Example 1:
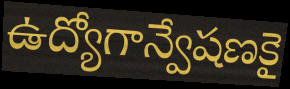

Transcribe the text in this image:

ఉద్యోగాన్వేషణకై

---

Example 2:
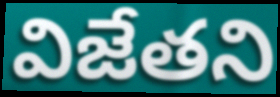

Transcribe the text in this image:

విజేతని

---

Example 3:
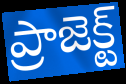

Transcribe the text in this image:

ప్రాజెక్ట్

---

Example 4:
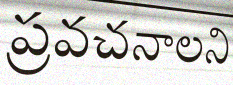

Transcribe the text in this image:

ప్రవచనాలని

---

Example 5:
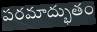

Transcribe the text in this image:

పరమాద్భుతం